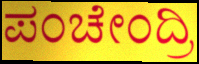
ಪಂಚೇಂದ್ರಿ